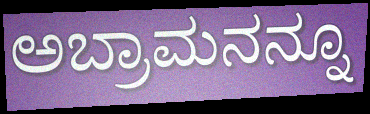
ಅಬ್ರಾಮನನ್ನೂ